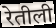
रेतीली